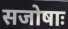
सजोषाः